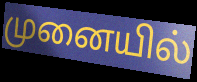
முனையில்